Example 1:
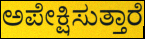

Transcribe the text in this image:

ಅಪೇಕ್ಷಿಸುತ್ತಾರೆ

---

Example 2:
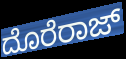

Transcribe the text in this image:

ದೊರೆರಾಜ್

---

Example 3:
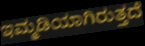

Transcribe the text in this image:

ಇಮ್ಮಡಿಯಾಗಿರುತ್ತದೆ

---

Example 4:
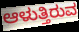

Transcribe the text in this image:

ಆಳುತ್ತಿರುವ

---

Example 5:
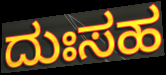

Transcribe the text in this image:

ದುಃಸಹ